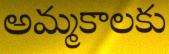
అమ్మకాలకు